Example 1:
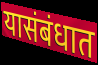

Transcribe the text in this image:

यासंबंधात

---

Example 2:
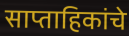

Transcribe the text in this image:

साप्ताहिकांचे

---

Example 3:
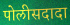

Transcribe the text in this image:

पोलीसदादा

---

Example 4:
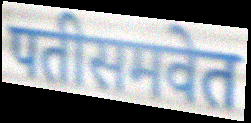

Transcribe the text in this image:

पतीसमवेत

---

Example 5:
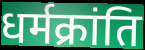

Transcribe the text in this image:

धर्मक्रांति